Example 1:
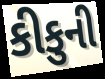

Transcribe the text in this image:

કીકુની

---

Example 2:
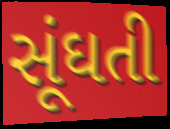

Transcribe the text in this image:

સૂંઘતી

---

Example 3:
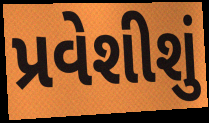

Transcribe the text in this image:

પ્રવેશીશું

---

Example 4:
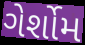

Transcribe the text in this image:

ગેર્શોમ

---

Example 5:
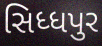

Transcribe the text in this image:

સિધ્ધપુર